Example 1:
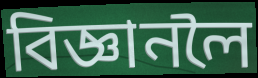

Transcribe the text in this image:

বিজ্ঞানলৈ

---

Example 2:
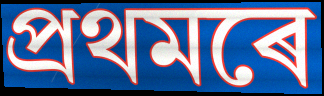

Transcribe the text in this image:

প্ৰথমৰে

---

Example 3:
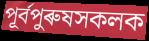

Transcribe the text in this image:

পূৰ্বপুৰুষসকলক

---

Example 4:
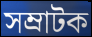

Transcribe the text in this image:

সম্ৰাটক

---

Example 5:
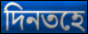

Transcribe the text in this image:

দিনতহে